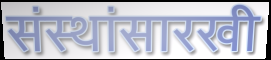
संस्थांसारखी